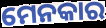
ମେନକାର